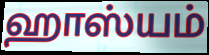
ஹாஸ்யம்